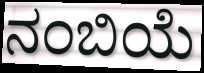
ನಂಬಿಯೆ